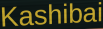
Kashibai